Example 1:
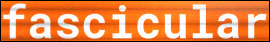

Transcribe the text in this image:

fascicular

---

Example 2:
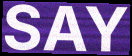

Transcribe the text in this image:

SAY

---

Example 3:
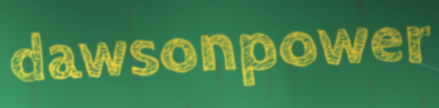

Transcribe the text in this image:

dawsonpower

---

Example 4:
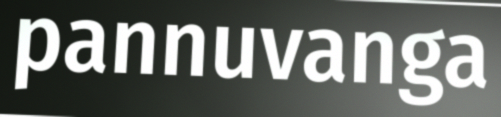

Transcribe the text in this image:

pannuvanga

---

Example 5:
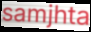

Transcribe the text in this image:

samjhta